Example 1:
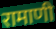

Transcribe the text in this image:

रामाणी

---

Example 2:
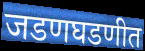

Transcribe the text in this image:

जडणघडणीत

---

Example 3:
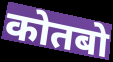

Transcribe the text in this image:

कोतबो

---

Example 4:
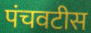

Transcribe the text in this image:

पंचवटीस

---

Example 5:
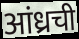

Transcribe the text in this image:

आंध्रची